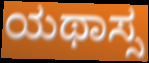
ಯಥಾಸ್ಸ